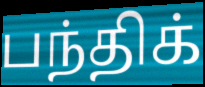
பந்திக்